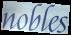
nobles